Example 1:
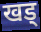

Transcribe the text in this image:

खड्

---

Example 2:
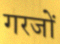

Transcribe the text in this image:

गरजों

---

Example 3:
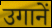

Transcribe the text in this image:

उगानें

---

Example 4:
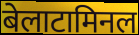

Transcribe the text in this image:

बेलाटामिनल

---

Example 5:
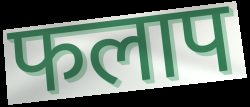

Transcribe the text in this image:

फलाप